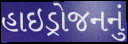
હાઇડ્રોજનનું